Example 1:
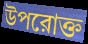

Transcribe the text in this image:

উপরোক্ত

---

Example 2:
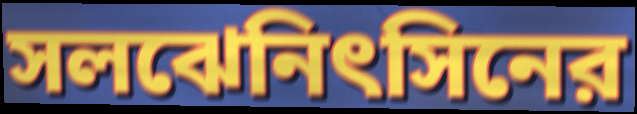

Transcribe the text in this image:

সলঝেনিৎসিনের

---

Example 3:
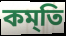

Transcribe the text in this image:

কম্‌তি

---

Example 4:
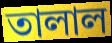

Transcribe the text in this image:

তালাল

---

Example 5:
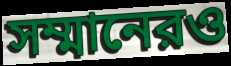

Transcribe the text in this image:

সম্মানেরও